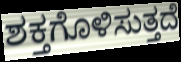
ಶಕ್ತಗೊಳಿಸುತ್ತದೆ